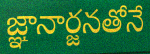
జ్ఞానార్జనతోనే